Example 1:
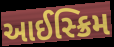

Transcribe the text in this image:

આઈસ્ક્રિમ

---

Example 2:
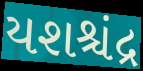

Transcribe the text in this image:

યશશ્ચંદ્ર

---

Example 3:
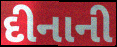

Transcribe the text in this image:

દીનાની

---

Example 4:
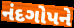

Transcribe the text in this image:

નંદગોપને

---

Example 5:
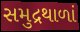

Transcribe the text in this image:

સમુદ્રથાળાં